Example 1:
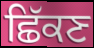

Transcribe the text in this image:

ਛਿੱਕਣ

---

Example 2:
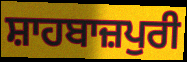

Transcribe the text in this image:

ਸ਼ਾਹਬਾਜ਼ਪੁਰੀ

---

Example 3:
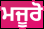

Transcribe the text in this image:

ਮਜੂਰੋ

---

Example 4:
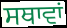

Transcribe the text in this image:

ਸਥਾਵਾਂ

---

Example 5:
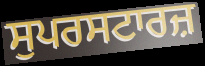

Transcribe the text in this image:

ਸੁਪਰਸਟਾਰਜ਼